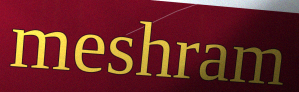
meshram